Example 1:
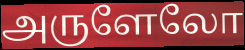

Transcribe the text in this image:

அருளேலோ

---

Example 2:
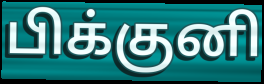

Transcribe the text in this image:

பிக்குனி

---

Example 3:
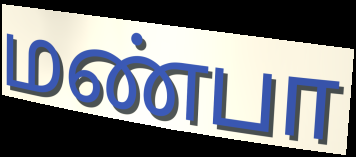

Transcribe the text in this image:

மண்பா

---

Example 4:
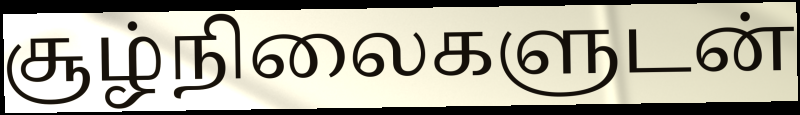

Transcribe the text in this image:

சூழ்நிலைகளுடன்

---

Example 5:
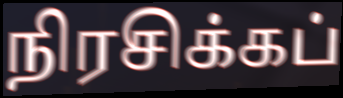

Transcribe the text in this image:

நிரசிக்கப்